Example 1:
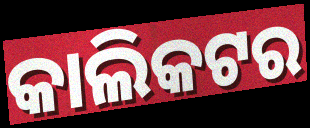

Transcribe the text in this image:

କାଲିକଟର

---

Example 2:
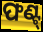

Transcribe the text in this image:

ଫଣ୍ଟ୍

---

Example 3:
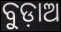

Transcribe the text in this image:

ବୁଡ଼ାଅ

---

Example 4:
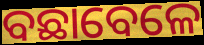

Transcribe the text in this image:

ବଛାବେଳେ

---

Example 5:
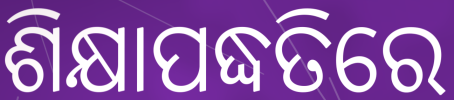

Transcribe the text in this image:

ଶିକ୍ଷାପଦ୍ଧତିରେ